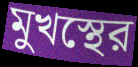
মুখস্থের